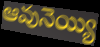
ఆవునెయ్యి